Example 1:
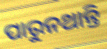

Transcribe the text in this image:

ପାରୁନଥାନ୍ତି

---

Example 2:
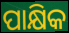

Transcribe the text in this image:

ପାକ୍ଷିକ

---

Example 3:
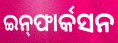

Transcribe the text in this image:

ଇନ୍‌ଫାର୍କସନ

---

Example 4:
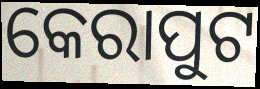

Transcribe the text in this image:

କେରାପୁଟ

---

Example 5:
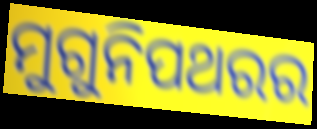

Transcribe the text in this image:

ମୁଗୁନିପଥରର